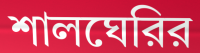
শালঘেরির